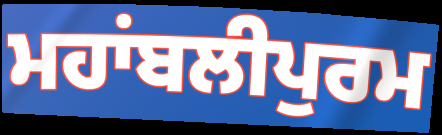
ਮਹਾਂਬਲੀਪੁਰਮ